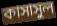
কাসাসুল